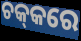
ଚକ୍‌କରେ